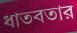
ধাতবতার